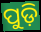
ପୁଡ଼ି